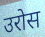
उरोस